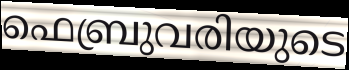
ഫെബ്രുവരിയുടെ